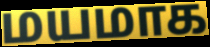
மயமாக